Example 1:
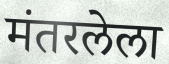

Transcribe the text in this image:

मंतरलेला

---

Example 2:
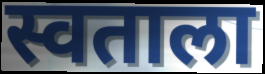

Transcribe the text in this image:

स्वताला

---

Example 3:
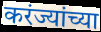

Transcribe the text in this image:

करंज्यांच्या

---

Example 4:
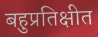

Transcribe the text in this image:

बहुप्रतिक्षीत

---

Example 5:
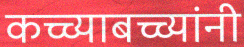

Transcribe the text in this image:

कच्च्याबच्च्यांनी